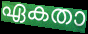
ഏകതാ